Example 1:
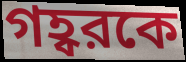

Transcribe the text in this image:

গহ্বরকে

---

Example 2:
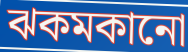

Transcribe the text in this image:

ঝকমকানো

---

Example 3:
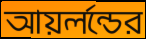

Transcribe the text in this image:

আয়র্লন্ডের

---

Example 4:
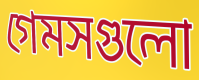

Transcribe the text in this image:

গেমসগুলো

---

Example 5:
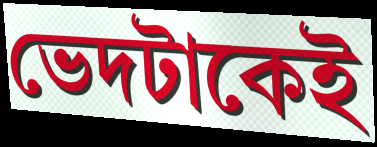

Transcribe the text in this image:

ভেদটাকেই